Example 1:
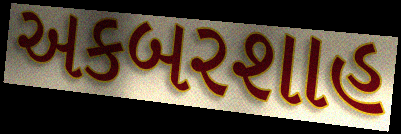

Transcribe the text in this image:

અકબરશાહ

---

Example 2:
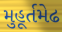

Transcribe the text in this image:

મુહૂર્તમેઢ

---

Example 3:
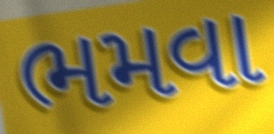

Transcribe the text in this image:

ભમવા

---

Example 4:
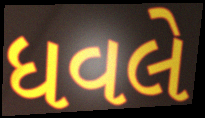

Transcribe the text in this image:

ધવલે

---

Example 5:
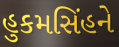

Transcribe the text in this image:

હુકમસિંહને